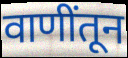
वाणींतून